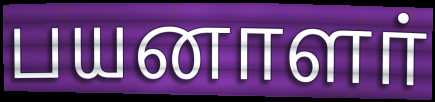
பயனாளர்